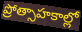
ప్రోత్సాహకాల్లో